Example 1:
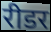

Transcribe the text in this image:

रीडर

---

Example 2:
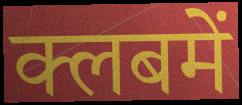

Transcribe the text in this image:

क्लबमें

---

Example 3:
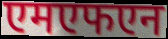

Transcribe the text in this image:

एमएफएन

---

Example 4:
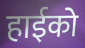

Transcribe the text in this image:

हाईको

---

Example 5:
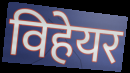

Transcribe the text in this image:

विहेयर